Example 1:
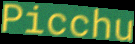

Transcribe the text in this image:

Picchu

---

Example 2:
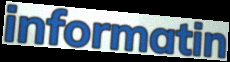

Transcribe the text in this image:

informatin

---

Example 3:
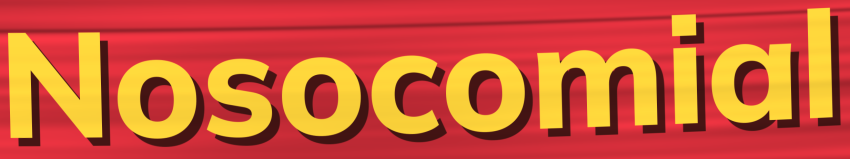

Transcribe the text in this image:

Nosocomial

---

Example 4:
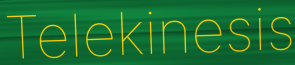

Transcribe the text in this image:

Telekinesis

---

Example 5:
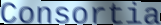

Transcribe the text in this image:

Consortia